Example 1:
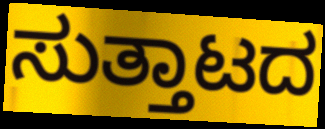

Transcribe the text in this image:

ಸುತ್ತಾಟದ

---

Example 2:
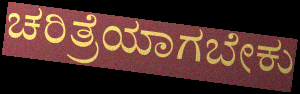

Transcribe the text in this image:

ಚರಿತ್ರೆಯಾಗಬೇಕು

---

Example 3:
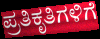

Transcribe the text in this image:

ಪ್ರತಿಕೃತಿಗಳಿಗೆ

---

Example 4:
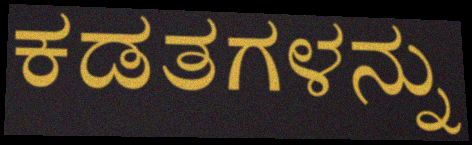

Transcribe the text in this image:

ಕಡತಗಳನ್ನು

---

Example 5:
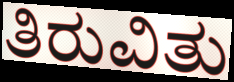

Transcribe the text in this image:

ತಿರುವಿತು